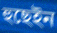
হুছেইন